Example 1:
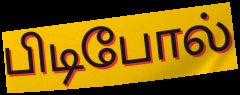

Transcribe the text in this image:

பிடிபோல்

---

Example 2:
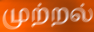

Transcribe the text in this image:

முற்றல்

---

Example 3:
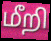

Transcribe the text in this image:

மீறி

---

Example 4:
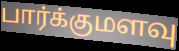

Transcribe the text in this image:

பார்க்குமளவு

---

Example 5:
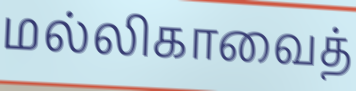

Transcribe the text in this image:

மல்லிகாவைத்